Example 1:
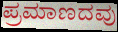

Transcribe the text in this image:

ಪ್ರಮಾಣದವು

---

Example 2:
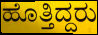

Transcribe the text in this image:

ಹೊತ್ತಿದ್ದರು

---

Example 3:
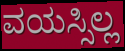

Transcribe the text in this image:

ವಯಸ್ಸಿಲ್ಲ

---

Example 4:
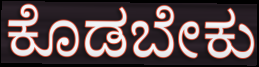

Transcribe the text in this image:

ಕೊಡಬೇಕು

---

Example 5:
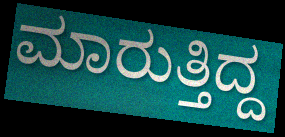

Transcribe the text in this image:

ಮಾರುತ್ತಿದ್ದ